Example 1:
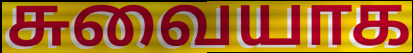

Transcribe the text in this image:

சுவையாக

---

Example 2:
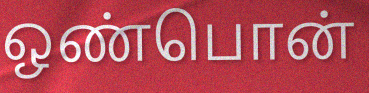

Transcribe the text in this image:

ஒண்பொன்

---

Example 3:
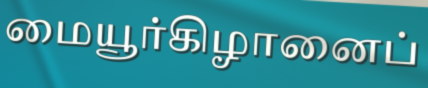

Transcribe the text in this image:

மையூர்கிழானைப்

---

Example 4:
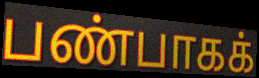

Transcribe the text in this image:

பண்பாகக்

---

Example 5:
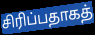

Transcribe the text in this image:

சிரிப்பதாகத்